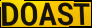
DOAST